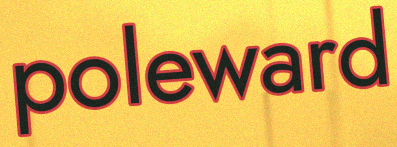
poleward